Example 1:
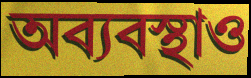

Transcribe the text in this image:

অব্যবস্থাও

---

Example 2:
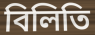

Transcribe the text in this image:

বিলিতি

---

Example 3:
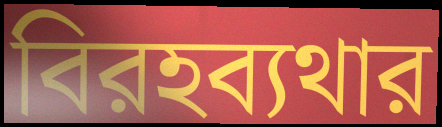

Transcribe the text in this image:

বিরহব্যথার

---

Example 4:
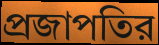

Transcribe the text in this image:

প্রজাপতির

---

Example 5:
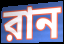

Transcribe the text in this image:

রান